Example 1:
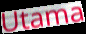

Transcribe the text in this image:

Utama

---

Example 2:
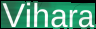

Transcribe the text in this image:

Vihara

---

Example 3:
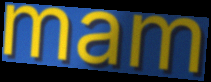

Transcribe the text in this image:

mam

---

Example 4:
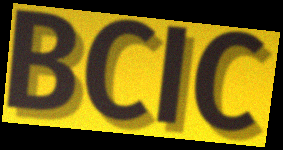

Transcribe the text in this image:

BCIC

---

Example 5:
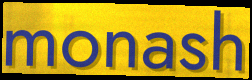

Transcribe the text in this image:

monash